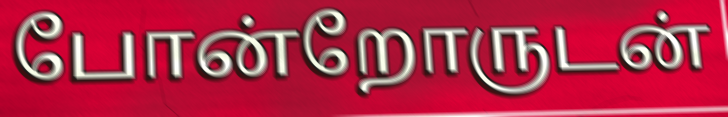
போன்றோருடன்